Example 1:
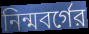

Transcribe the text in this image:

নিন্মবর্গের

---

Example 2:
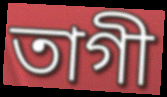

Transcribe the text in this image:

তাগী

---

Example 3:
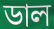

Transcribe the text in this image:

ডাল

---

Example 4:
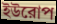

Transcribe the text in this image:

ইউরোপ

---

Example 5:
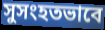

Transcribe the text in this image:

সুসংহতভাবে